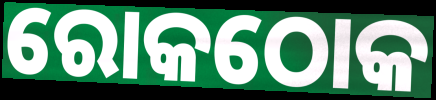
ରୋକଠୋକ